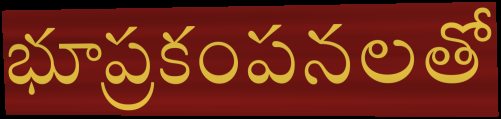
భూప్రకంపనలతో